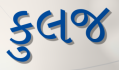
કુલજ